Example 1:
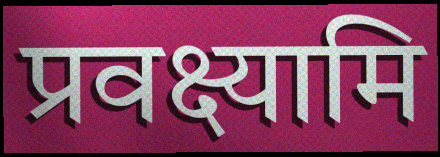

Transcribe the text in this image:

प्रवक्ष्यामि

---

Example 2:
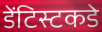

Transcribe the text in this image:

डेंटिस्टकडे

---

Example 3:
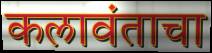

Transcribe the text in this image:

कलावंताचा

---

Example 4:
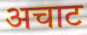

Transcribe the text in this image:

अचाट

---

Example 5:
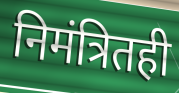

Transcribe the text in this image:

निमंत्रितही